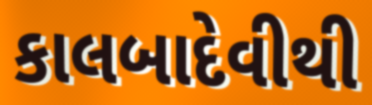
કાલબાદેવીથી